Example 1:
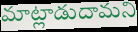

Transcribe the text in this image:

మాట్లాడుదామని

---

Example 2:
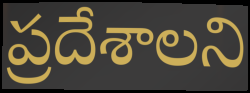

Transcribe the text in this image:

ప్రదేశాలని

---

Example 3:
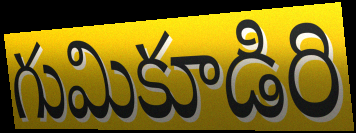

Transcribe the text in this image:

గుమికూడిరి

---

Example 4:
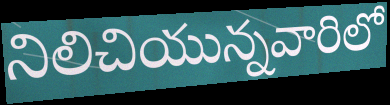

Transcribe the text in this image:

నిలిచియున్నవారిలో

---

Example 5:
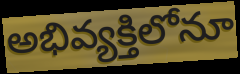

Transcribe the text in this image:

అభివ్యక్తిలోనూ